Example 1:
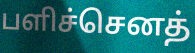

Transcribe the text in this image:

பளிச்செனத்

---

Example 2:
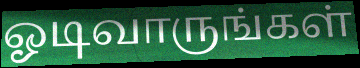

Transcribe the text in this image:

ஓடிவாருங்கள்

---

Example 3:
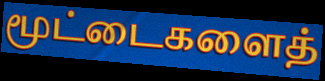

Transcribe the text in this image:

மூட்டைகளைத்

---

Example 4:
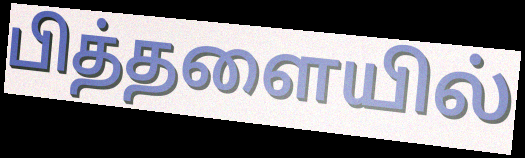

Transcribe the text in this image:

பித்தளையில்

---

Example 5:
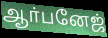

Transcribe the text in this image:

ஆர்பனேஜ்